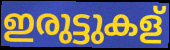
ഇരുട്ടുകള്